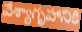
వేశ్యాగృహానికి